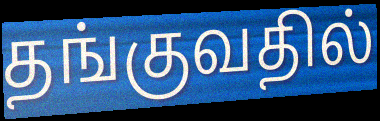
தங்குவதில்